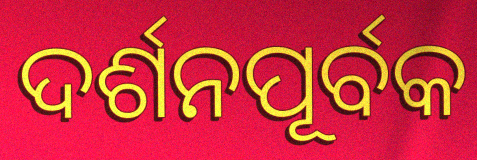
ଦର୍ଶନପୂର୍ବକ